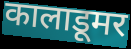
कालाडूमर